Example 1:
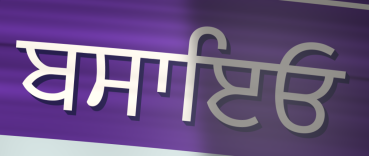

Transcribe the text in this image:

ਬਸਾਇਓ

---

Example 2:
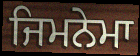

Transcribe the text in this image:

ਜਿਮਨੇਮਾ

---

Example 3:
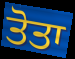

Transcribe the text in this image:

ਤੋਤਾ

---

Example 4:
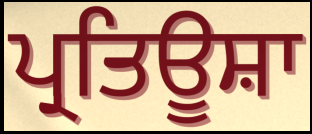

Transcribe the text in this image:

ਪ੍ਰਤਿਊਸ਼ਾ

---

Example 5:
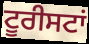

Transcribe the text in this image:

ਟੂਰੀਸਟਾਂ